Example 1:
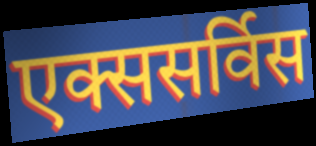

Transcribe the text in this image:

एक्ससर्विस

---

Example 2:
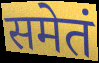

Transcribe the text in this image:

समेतं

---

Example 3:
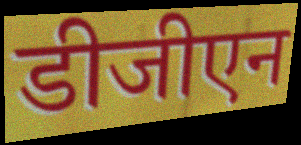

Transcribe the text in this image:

डीजीएन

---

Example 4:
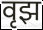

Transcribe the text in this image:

वृझ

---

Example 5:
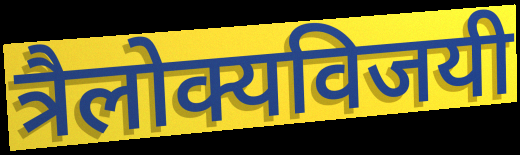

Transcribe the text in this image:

त्रैलोक्यविजयी